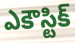
ఎకౌస్టిక్